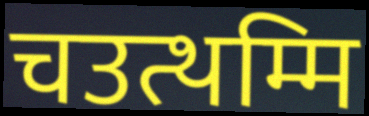
चउत्थम्मि